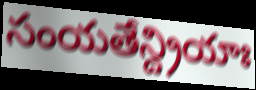
సంయతేన్ద్రియాః